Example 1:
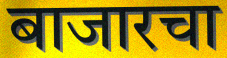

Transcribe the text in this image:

बाजारचा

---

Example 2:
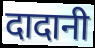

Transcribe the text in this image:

दादानी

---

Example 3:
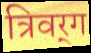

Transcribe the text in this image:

त्रिवर्ग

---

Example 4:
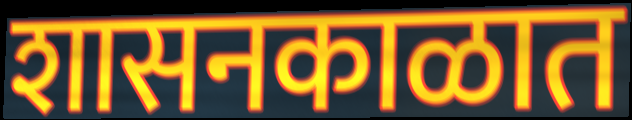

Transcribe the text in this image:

शासनकाळात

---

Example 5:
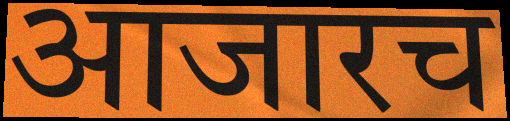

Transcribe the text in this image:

आजारच